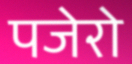
पजेरो